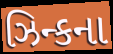
ઝિન્કના